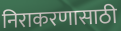
निराकरणासाठी